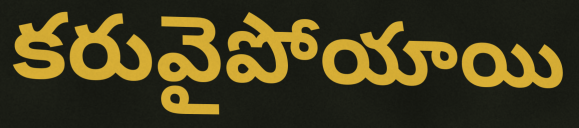
కరువైపోయాయి